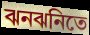
ঝনঝনিতে